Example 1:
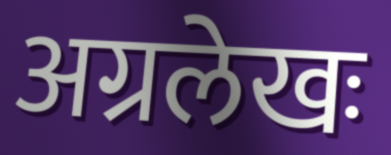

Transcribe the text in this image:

अग्रलेखः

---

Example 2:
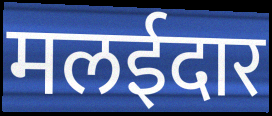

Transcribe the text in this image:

मलईदार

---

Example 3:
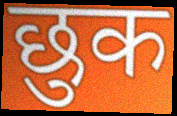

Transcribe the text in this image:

छुक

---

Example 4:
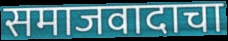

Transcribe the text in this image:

समाजवादाचा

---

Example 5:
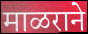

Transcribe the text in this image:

माळराने